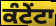
ਕੰਟੇਂਟਾ